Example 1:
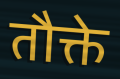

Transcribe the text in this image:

तौक्ते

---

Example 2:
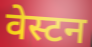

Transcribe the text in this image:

वेस्टन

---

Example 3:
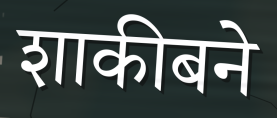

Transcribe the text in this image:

शाकीबने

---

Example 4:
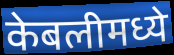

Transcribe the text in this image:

केबलीमध्ये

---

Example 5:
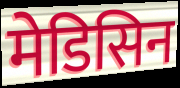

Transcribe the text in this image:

मेडिसिन